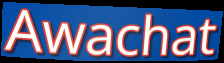
Awachat